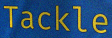
Tackle